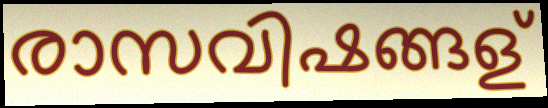
രാസവിഷങ്ങള്